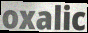
oxalic